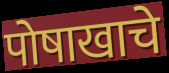
पोषाखाचे